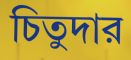
চিতুদার